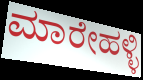
ಮಾರೇಹಳ್ಳಿ